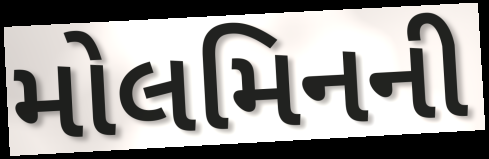
મોલમિનની